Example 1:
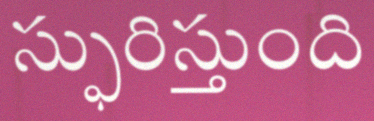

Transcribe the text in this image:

స్ఫురిస్తుంది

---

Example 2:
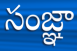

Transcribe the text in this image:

సంజ్ఞా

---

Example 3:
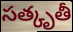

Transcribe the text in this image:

సత్కృతీ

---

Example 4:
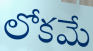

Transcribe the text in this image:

లోకమే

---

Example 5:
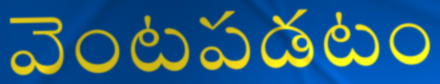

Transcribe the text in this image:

వెంటపడటం